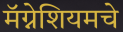
मॅग्नेशियमचे